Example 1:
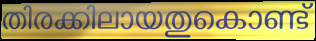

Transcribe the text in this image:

തിരക്കിലായതുകൊണ്ട്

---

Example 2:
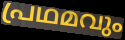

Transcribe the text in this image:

പ്രഥമവും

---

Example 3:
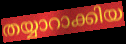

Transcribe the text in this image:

തയ്യാറാക്കിയ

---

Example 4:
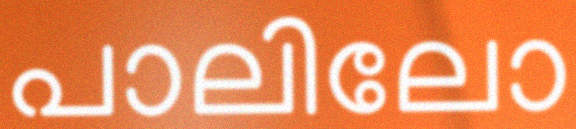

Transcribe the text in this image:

പാലിലോ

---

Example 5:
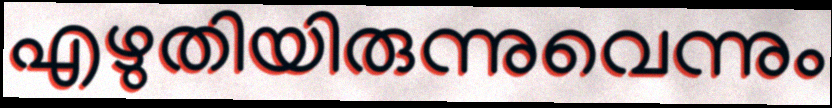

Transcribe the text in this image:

എഴുതിയിരുന്നുവെന്നും